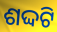
ଶଦ୍ଦଟି